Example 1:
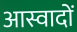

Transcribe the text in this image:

आस्वादों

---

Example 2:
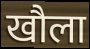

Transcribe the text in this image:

खौला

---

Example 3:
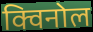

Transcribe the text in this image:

क्विनोल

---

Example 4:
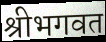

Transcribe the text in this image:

श्रीभगवत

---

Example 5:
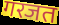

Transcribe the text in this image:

गरजत